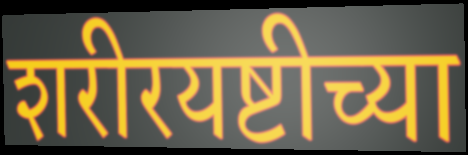
शरीरयष्टीच्या